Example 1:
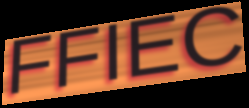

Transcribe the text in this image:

FFIEC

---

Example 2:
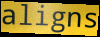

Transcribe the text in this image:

aligns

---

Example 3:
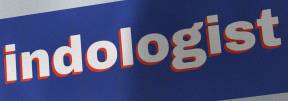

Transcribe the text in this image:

indologist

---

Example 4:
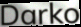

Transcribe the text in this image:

Darko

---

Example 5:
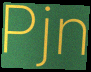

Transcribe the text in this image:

Pjn